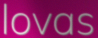
lovas